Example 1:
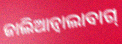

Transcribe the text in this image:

ଜାଲିଆନ୍ଵାଲାବାଗ୍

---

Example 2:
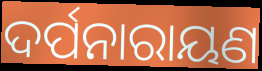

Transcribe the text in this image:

ଦର୍ପନାରାୟଣ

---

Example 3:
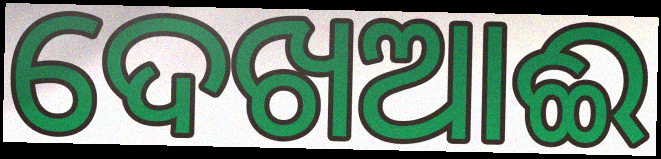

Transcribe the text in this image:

ଦେଖଆଈ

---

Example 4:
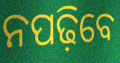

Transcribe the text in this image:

ନପଢ଼ିବେ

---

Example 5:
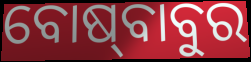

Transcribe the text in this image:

ବୋଷ୍‍ବାବୁର